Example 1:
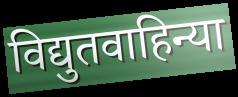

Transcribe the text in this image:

विद्युतवाहिन्या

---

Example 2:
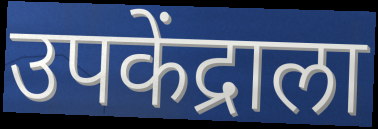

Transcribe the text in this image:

उपकेंद्राला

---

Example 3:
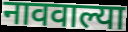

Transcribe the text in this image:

नाववाल्या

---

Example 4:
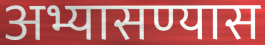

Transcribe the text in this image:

अभ्यासण्यास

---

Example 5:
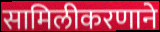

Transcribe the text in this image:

सामिलीकरणाने